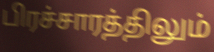
பிரச்சாரத்திலும்